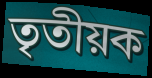
তৃতীয়ক